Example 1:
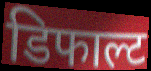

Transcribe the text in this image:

डिफाल्ट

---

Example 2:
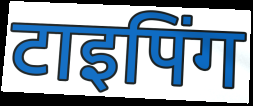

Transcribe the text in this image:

टाइपिंग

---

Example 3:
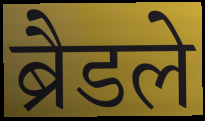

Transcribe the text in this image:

ब्रैडले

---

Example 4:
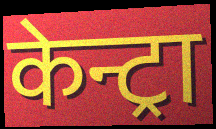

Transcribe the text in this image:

केन्ट्रा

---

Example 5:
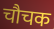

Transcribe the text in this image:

चौचक